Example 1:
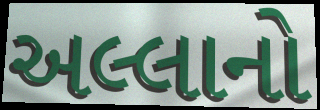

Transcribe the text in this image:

અલ્લાનો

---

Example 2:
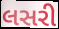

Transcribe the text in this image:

લસરી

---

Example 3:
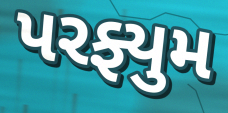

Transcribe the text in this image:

પરફ્યુમ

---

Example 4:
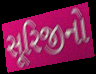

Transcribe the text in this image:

સૂરિજીનો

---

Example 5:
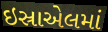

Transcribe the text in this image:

ઇસ્રાએલમાં